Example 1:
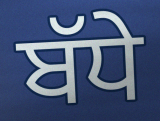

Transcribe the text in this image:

ਬੱਧੇ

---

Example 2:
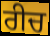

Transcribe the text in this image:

ਰੀਚ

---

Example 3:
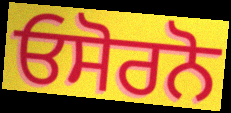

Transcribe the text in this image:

ਓਸੋਰਨੋ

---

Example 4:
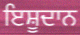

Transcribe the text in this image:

ਇਸ਼ੂਦਾਨ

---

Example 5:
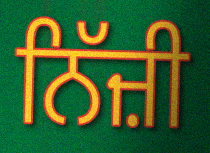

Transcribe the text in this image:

ਨਿੱਜ਼ੀ